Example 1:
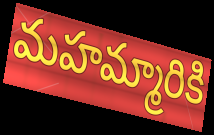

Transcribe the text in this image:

మహమ్మారికి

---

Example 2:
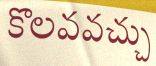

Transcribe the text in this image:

కొలవవచ్చు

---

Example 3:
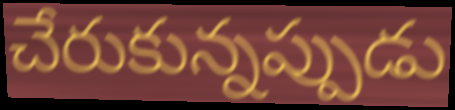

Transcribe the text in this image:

చేరుకున్నప్పుడు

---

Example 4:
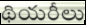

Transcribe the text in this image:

థియరీలు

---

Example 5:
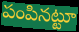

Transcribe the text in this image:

పంపినట్టూ